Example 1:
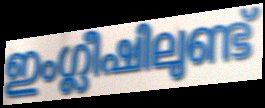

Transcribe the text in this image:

ഇംഗ്ലീഷിലുണ്ട്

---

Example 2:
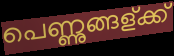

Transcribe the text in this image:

പെണ്ണുങ്ങള്ക്ക്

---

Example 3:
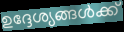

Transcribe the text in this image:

ഉദ്ദേശ്യങ്ങൾക്ക്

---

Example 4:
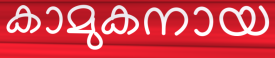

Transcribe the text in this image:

കാമുകനായ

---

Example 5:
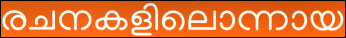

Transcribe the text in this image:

രചനകളിലൊന്നായ